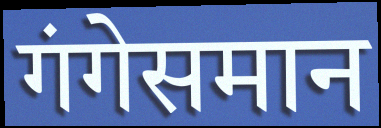
गंगेसमान